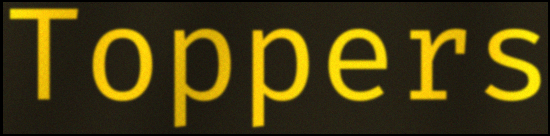
Toppers